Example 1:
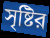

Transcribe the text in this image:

সৃষ্টির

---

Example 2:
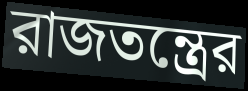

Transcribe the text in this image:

রাজতন্ত্রের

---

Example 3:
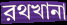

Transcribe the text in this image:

রথখানা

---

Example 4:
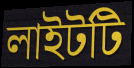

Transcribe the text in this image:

লাইটটি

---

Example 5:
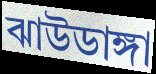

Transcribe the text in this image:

ঝাউডাঙ্গা